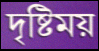
দৃষ্টিময়